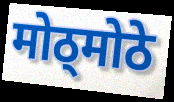
मोठ्मोठे